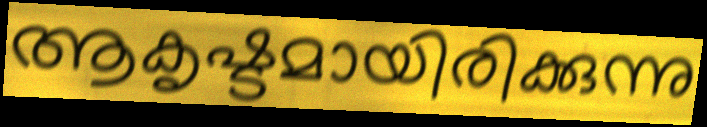
ആകൃഷ്ടമായിരിക്കുന്നു